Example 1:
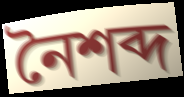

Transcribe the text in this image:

নৈশব্দ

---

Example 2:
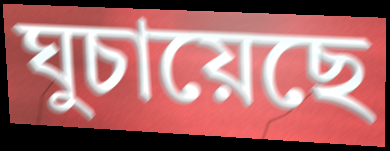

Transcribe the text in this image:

ঘুচায়েছে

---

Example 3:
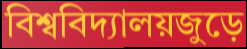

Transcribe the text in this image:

বিশ্ববিদ্যালয়জুড়ে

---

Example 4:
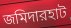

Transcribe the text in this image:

জমিদারহাট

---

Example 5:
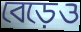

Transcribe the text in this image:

বেড়েও